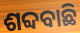
ଶବ୍ଦବାଛି